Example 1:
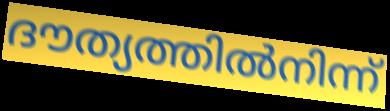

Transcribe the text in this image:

ദൗത്യത്തിൽനിന്ന്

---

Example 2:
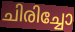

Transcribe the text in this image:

ചിരിച്ചോ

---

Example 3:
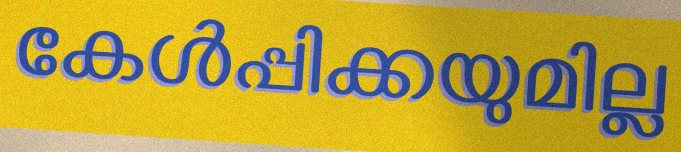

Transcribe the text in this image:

കേൾപ്പിക്കയുമില്ല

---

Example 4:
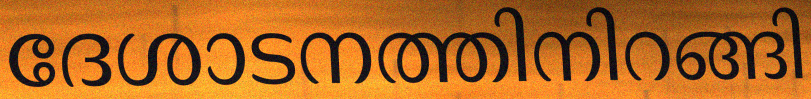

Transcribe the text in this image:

ദേശാടനത്തിനിറങ്ങി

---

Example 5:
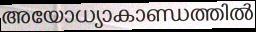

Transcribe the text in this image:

അയോധ്യാകാണ്ഡത്തിൽ